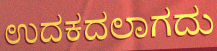
ಉದಕದಲಾಗದು